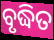
ବୃଦ୍ଧିତ